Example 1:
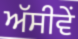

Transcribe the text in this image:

ਅੱਸੀਵੇਂ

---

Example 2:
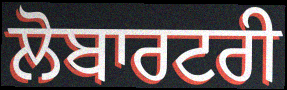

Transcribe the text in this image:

ਲੋਬਾਰਟਰੀ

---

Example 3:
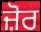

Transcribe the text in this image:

ਜ਼ੋਰ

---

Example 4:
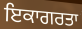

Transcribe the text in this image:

ਇਕਾਗਰਤਾ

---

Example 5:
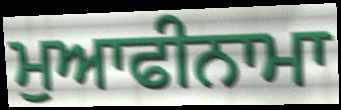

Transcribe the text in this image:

ਮੁਆਫੀਨਾਮਾ